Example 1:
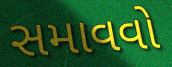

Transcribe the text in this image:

સમાવવો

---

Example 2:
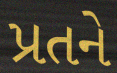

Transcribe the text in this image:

પ્રતને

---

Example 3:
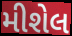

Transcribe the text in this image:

મીશેલ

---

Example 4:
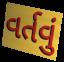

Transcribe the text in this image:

વર્તવું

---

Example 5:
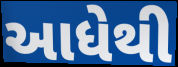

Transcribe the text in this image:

આધેથી